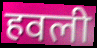
हवली